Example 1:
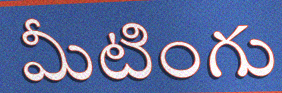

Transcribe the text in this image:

మీటింగు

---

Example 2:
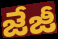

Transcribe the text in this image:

జేజీ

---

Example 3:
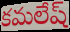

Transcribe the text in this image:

కమలేష్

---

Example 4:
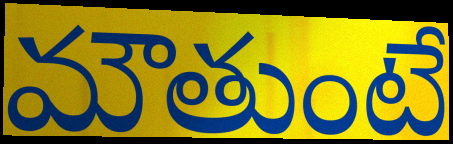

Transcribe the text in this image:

మౌతుంటే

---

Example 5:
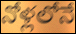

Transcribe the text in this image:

నోళ్లలోనే